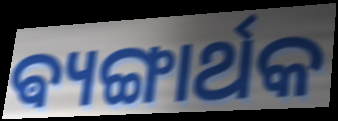
ଵ୍ୟଙ୍ଗାର୍ଥକ